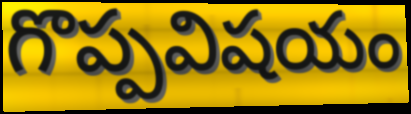
గొప్పవిషయం